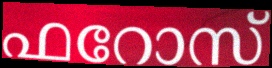
ഫറോസ്